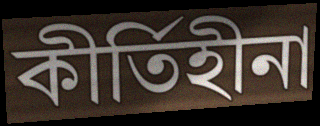
কীর্তিহীনা